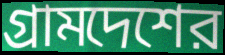
গ্রামদেশের